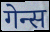
गेन्स